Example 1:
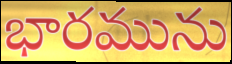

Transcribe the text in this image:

భారమును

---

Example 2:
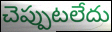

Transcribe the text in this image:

చెప్పుటలేదు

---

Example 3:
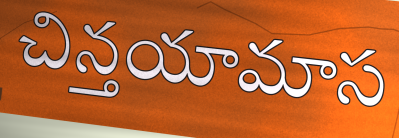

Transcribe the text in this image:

చిన్తయామాస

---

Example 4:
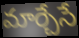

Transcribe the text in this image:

మార్చేసే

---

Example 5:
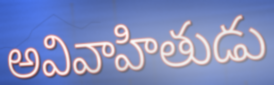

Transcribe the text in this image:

అవివాహితుడు